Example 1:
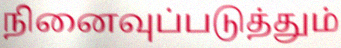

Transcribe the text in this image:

நினைவுப்படுத்தும்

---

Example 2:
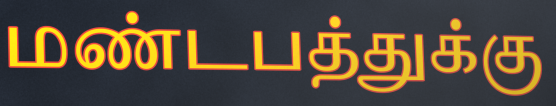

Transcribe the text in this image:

மண்டபத்துக்கு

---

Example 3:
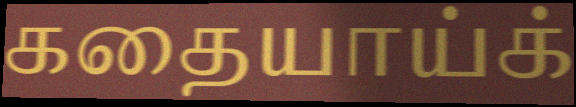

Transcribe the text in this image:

கதையாய்க்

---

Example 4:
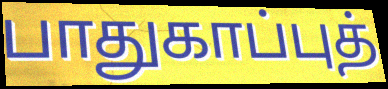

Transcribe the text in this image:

பாதுகாப்புத்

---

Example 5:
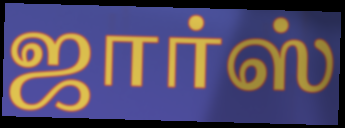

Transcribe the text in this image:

ஜார்ஸ்